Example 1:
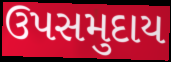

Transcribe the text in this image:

ઉપસમુદાય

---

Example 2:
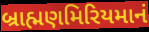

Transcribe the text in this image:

બ્રાહ્મણમિરિયમાનં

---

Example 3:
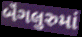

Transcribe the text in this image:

બૅંગલુરુમાં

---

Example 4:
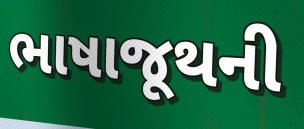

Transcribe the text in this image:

ભાષાજૂથની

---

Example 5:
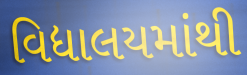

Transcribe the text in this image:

વિદ્યાલયમાંથી